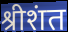
श्रीशंत